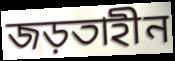
জড়তাহীন